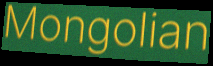
Mongolian